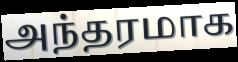
அந்தரமாக